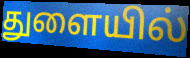
துளையில்